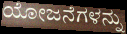
ಯೋಜನೆಗಳನ್ನು